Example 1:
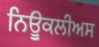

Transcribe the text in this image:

ਨਿਊਕਲੀਅਸ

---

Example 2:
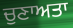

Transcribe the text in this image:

ਚੁਣਾਅਤਾ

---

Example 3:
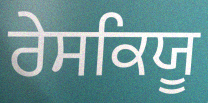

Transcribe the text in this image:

ਰੇਸਕਿਯੂ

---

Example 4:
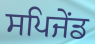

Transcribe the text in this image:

ਸਪਿਜੇਂਡ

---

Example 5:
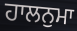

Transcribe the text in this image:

ਹਾਲਨੁਮਾ